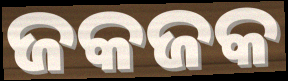
ଜକଜକ